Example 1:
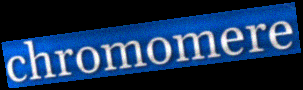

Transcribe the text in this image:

chromomere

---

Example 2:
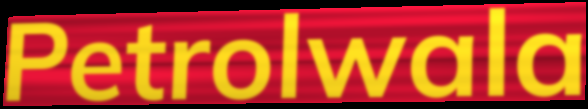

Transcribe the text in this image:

Petrolwala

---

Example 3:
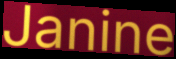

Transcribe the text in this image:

Janine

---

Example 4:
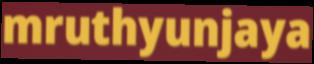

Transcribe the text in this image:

mruthyunjaya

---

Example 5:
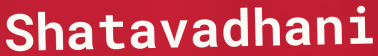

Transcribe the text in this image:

Shatavadhani